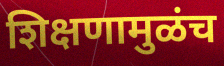
शिक्षणामुळंच